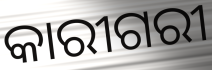
କାରୀଗରୀ